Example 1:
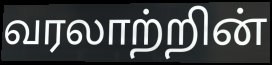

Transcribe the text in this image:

வரலாற்றின்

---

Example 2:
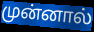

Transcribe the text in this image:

முன்னால்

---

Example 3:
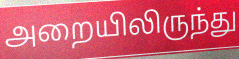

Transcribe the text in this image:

அறையிலிருந்து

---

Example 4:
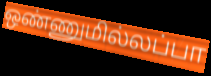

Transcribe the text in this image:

ஒண்ணுமில்லப்பா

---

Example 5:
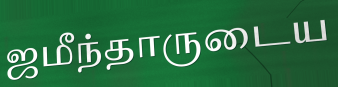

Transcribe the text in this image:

ஜமீந்தாருடைய